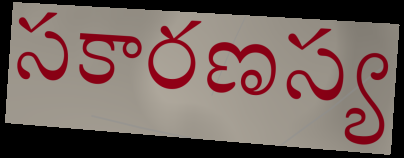
సకారణస్య